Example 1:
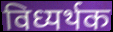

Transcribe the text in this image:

विध्यर्थक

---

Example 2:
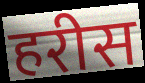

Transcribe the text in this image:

हरीस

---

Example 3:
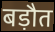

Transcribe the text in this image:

बड़ौत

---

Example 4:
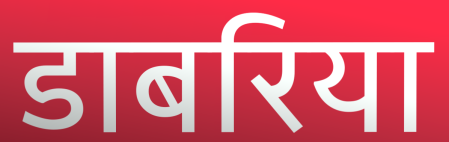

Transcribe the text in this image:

डाबरिया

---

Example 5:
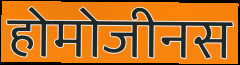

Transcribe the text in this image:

होमोजीनस